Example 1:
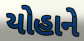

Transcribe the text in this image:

યોહાને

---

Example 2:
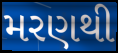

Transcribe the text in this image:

મરણથી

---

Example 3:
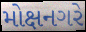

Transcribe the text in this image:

મોક્ષનગરે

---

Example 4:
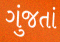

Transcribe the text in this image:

ગુંજતાં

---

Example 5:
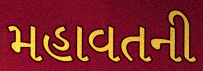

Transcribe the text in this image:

મહાવતની